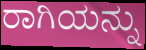
ರಾಗಿಯನ್ನು